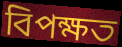
বিপক্ষত